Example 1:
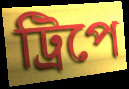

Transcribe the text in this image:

ট্রিপে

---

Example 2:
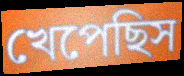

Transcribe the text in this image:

খেপেছিস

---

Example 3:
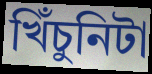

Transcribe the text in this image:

খিঁচুনিটা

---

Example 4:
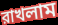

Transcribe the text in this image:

রাখলাম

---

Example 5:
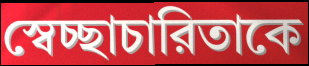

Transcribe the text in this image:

স্বেচ্ছাচারিতাকে